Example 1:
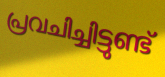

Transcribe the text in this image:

പ്രവചിച്ചിട്ടുണ്ട്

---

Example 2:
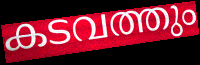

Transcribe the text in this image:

കടവത്തും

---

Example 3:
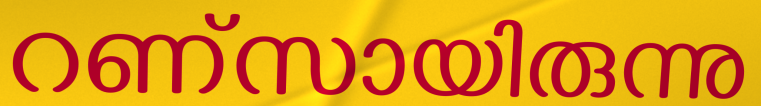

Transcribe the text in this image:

റണ്സായിരുന്നു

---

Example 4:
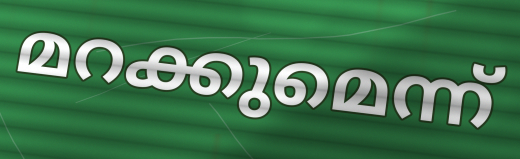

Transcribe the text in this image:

മറക്കുമെന്ന്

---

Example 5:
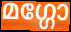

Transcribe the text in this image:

മഗ്ഗോ